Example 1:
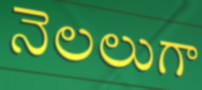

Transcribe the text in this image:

నెలలుగా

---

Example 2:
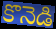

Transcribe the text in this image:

కొనెడి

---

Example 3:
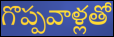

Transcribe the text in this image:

గొప్పవాళ్లతో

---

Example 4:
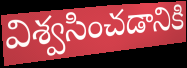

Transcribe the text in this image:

విశ్వసించడానికి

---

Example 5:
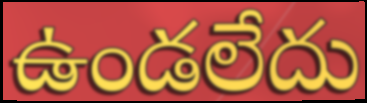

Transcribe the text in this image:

ఉండలేదు